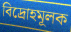
বিদ্রোহমূলক